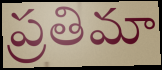
ప్రతిమా